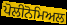
ਪੋਲੀਨੋਮਿਅਲ